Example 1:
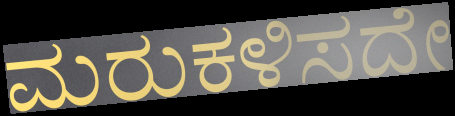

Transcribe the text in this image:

ಮರುಕಳಿಸದೇ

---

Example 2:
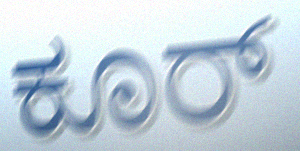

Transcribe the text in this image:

ಕೂರ್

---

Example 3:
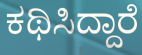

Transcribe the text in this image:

ಕಥಿಸಿದ್ದಾರೆ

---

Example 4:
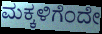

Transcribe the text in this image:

ಮಕ್ಕಳಿಗೆಂದೇ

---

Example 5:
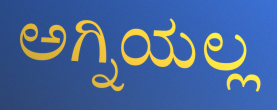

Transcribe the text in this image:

ಅಗ್ನಿಯಲ್ಲ